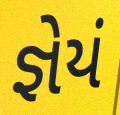
જ્ઞેયં